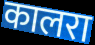
कालरा